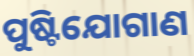
ପୁଷ୍ଟିଯୋଗାଣ